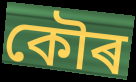
কৌৰ